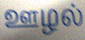
ஊழல்